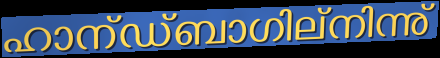
ഹാന്ഡ്ബാഗില്നിന്നു്